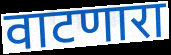
वाटणारा